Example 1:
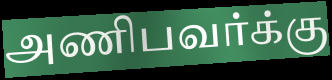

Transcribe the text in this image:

அணிபவர்க்கு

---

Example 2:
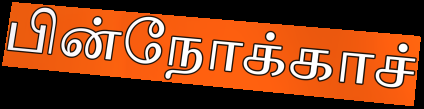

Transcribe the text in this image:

பின்நோக்காச்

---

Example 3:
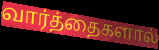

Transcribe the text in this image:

வார்த்தைகளால்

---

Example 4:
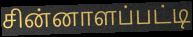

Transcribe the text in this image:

சின்னாளப்பட்டி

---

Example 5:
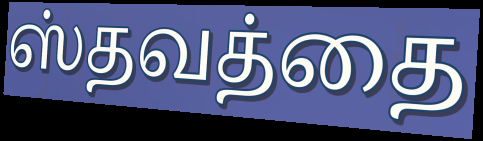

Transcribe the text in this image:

ஸ்தவத்தை